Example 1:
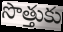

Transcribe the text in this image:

సొత్తుకు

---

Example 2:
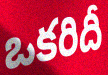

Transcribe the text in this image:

ఒకరిదీ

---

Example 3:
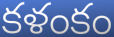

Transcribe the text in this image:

కళంకం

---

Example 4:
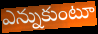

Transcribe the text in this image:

ఎన్నుకుంటూ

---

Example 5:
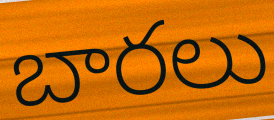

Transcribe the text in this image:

బారలు